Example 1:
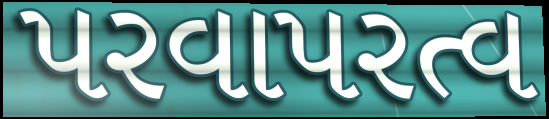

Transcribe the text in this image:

પરવાપરત્વ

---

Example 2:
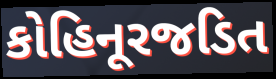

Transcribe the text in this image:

કોહિનૂરજડિત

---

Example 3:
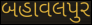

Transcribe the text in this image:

બહાવલપુર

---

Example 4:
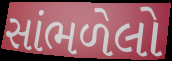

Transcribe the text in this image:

સાંભળેલો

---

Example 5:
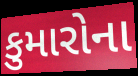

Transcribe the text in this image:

કુમારોના